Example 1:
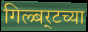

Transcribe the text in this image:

गिल्बर्टच्या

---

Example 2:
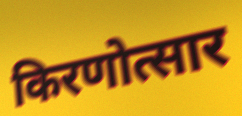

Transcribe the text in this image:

किरणोत्सार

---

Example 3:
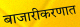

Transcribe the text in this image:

बाजारीकरणात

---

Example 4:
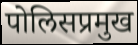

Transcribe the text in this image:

पोलिसप्रमुख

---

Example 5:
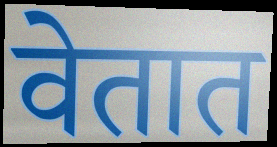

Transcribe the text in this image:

वेतात